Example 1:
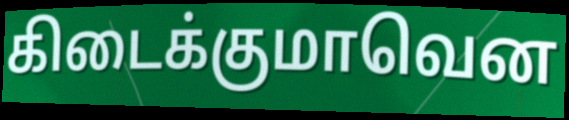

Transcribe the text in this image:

கிடைக்குமாவென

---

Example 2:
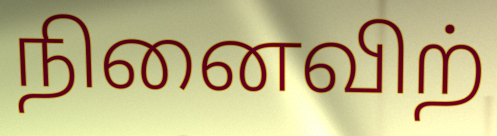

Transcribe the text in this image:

நினைவிற்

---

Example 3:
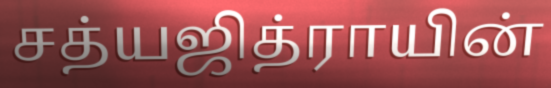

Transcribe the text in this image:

சத்யஜித்ராயின்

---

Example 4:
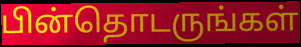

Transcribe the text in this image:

பின்தொடருங்கள்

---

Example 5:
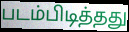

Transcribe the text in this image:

படம்பிடித்தது